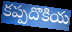
కప్పదొకియ